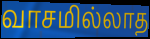
வாசமில்லாத